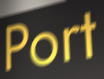
Port